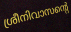
ശ്രീനിവാസന്റെ